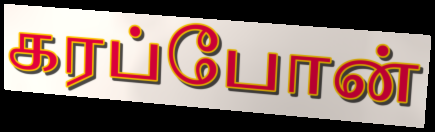
கரப்போன்